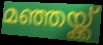
മഞ്ഞയ്ക്ക്